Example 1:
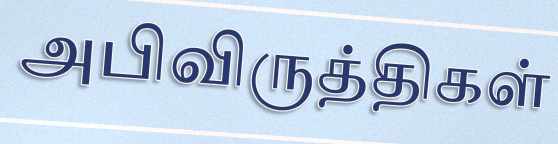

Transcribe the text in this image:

அபிவிருத்திகள்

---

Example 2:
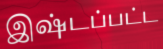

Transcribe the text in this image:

இஷ்டப்பட்ட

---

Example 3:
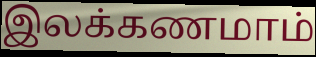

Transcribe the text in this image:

இலக்கணமாம்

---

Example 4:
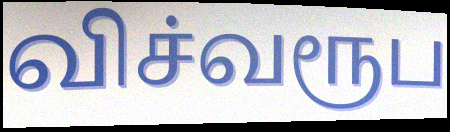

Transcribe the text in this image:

விச்வரூப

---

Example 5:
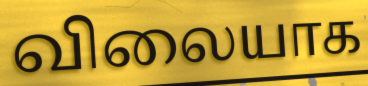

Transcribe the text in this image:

விலையாக